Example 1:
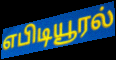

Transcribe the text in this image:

எபிடியூரல்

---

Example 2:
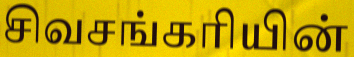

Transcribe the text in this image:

சிவசங்கரியின்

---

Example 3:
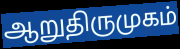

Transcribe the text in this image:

ஆறுதிருமுகம்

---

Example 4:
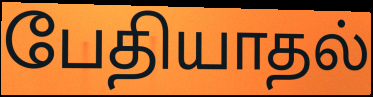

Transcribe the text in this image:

பேதியாதல்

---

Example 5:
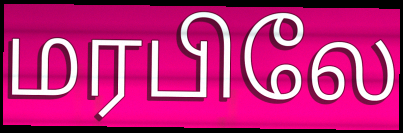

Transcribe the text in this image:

மரபிலே